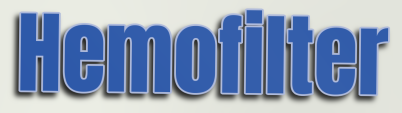
Hemofilter